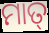
ମାତ୍